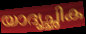
യാദൃച്ഛിക